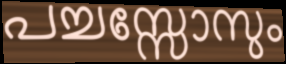
പച്ചസ്സോസും